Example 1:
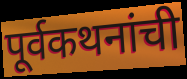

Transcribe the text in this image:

पूर्वकथनांची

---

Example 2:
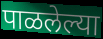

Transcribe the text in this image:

पाळलेल्या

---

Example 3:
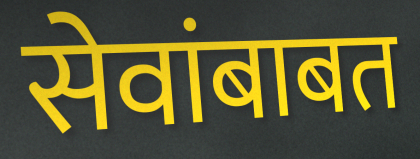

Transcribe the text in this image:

सेवांबाबत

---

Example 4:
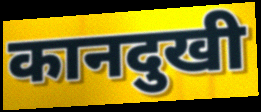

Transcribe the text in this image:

कानदुखी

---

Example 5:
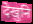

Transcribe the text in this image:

देखुनि